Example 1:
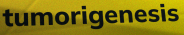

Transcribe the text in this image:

tumorigenesis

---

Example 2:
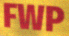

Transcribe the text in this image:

FWP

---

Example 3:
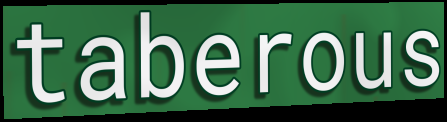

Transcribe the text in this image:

taberous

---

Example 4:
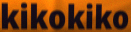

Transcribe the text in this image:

kikokiko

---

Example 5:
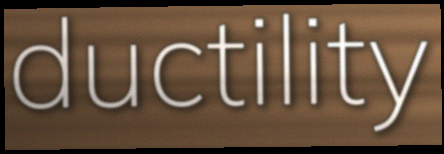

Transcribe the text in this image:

ductility